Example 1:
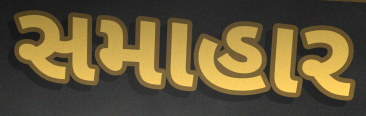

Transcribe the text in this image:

સમાહાર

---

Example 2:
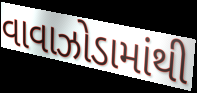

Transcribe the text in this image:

વાવાઝોડામાંથી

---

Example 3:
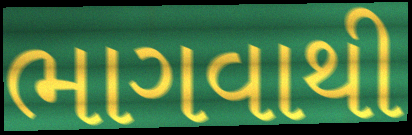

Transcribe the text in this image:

ભાગવાથી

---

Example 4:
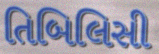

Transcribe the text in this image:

તિબિલિસી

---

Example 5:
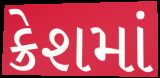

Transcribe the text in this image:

ક્રેશમાં